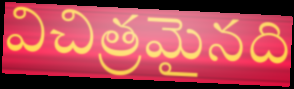
విచిత్రమైనది